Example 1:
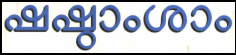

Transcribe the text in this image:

ഷഷ്ഠാംശാം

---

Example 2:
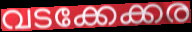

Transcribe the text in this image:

വടക്കേക്കര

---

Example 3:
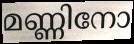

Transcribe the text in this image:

മണ്ണിനോ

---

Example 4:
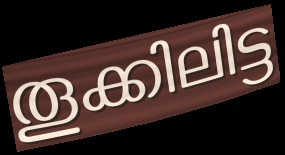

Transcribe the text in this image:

തൂക്കിലിട്ട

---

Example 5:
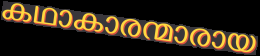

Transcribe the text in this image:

കഥാകാരന്മാരായ